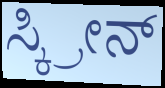
ಸ್ಕ್ರೀನ್